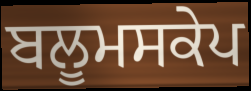
ਬਲੂਮਸਕੇਪ